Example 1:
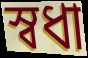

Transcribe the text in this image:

স্বধা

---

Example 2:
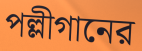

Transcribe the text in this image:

পল্লীগানের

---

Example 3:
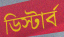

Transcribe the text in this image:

ডিস্টার্ব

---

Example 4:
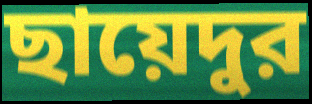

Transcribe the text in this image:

ছায়েদুর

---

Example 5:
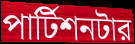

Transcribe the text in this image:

পার্টিশনটার